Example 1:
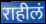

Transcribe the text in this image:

राहीलं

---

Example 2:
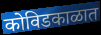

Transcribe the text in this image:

कोविडकाळात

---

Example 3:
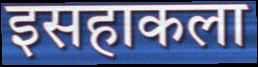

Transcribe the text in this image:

इसहाकला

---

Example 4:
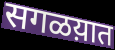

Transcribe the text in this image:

सगळय़ात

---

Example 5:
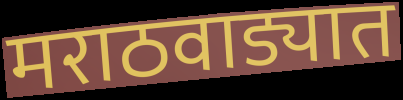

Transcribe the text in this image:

मराठवाड्यात